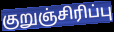
குறுஞ்சிரிப்பு